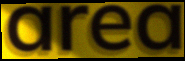
area